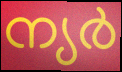
ന്യർ